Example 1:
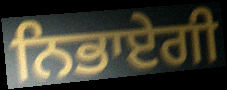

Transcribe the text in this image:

ਨਿਭਾਏਗੀ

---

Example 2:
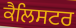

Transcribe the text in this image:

ਕੈਲਿਸਟਰ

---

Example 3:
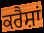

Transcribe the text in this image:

ਕਰੈਸ਼ਾਂ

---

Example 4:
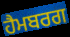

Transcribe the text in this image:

ਹੈਮਬਰਗ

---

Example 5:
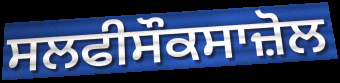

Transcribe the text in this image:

ਸਲਫੀਸੌਕਸਾਜ਼ੋਲ